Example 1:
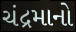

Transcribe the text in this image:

ચંદ્રમાનો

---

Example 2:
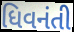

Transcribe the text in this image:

ધિવનંતી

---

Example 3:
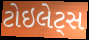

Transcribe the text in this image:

ટોઇલેટ્સ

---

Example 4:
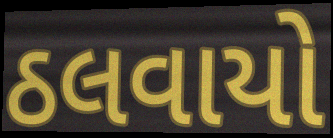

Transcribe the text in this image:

ઠલવાયો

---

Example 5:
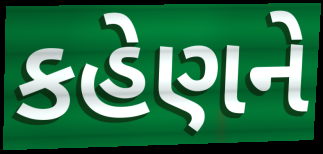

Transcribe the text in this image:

કહેણને